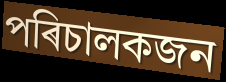
পৰিচালকজন